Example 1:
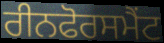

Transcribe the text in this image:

ਰੀਨਫੋਰਸਮੈਂਟ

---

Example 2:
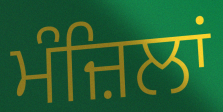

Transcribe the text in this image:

ਮੰਜ਼ਿਲਾਂ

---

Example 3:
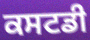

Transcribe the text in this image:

ਕਸਟਡੀ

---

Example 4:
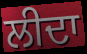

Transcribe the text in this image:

ਲੀਦਾ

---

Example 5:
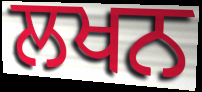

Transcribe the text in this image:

ਲਖਨ